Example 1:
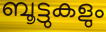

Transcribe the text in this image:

ബൂട്ടുകളും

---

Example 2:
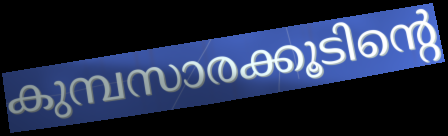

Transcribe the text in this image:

കുമ്പസാരക്കൂടിന്റെ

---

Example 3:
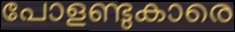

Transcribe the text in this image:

പോളണ്ടുകാരെ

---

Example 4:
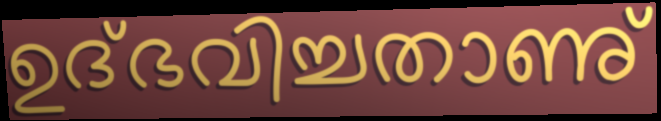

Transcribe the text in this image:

ഉദ്ഭവിച്ചതാണു്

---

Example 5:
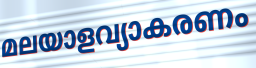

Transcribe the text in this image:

മലയാളവ്യാകരണം